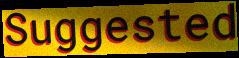
Suggested